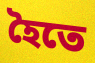
হৈতে